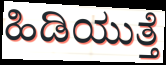
ಹಿಡಿಯುತ್ತೆ